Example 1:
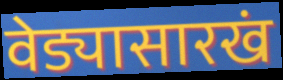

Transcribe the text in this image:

वेड्यासारखं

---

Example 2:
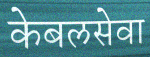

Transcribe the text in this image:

केबलसेवा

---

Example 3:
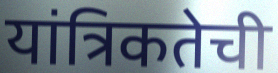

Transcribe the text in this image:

यांत्रिकतेची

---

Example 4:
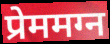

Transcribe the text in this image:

प्रेममग्न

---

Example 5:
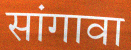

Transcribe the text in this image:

सांगावा